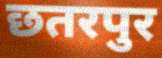
छतरपुर